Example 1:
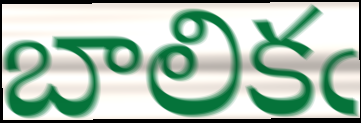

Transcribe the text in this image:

బాలికఁ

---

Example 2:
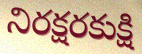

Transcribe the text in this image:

నిరక్షరకుక్షి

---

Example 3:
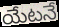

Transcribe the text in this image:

యేటనే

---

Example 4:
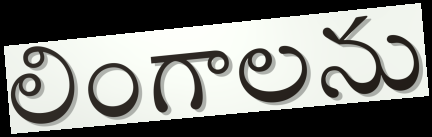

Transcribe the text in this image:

లింగాలను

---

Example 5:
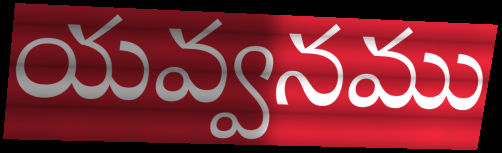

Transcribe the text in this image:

యవ్వనము